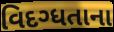
વિદગ્ધતાના